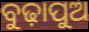
ବୁଢ଼ାପୁଅ